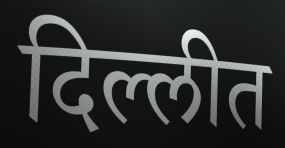
दिल्लीत